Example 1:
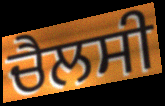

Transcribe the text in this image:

ਚੈਲਸੀ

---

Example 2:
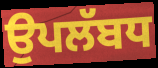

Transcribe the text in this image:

ਉਪਲੱਬਧ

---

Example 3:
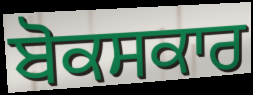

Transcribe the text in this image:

ਬੋਕਸਕਾਰ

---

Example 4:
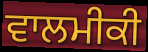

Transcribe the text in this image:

ਵਾਲਮੀਕੀ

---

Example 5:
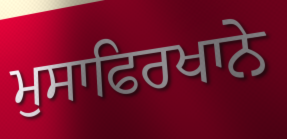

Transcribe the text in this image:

ਮੁਸਾਫਿਰਖਾਨੇ